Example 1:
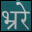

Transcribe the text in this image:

भ्ररे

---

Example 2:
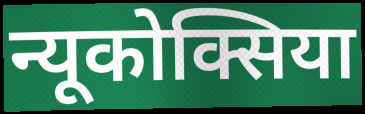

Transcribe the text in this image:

न्यूकोक्सिया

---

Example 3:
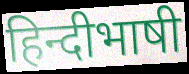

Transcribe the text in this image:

हिन्दीभाषी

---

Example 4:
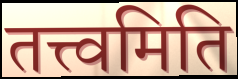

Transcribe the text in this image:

तत्त्वमिति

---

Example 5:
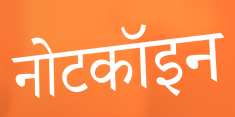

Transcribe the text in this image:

नोटकॉइन